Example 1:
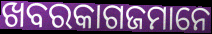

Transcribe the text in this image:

ଖବରକାଗଜମାନେ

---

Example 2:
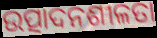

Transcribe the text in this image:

ଉତ୍ପାଦନଶୀଳତା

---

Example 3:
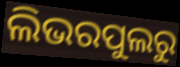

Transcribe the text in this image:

ଲିଭରପୁଲରୁ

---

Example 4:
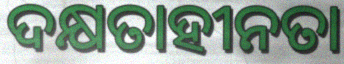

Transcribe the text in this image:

ଦକ୍ଷତାହୀନତା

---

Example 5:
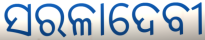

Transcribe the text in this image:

ସରଳାଦେବୀ